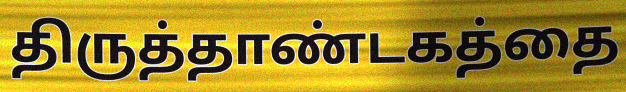
திருத்தாண்டகத்தை